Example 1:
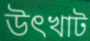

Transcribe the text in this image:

উৎখাট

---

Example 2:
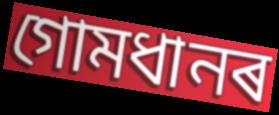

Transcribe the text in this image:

গোমধানৰ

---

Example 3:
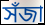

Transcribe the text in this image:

সঁজা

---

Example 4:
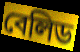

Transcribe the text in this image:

বেলিড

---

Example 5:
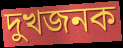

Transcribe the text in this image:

দুখজনক